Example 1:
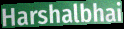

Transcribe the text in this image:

Harshalbhai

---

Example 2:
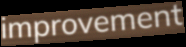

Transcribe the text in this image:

improvement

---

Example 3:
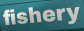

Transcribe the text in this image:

fishery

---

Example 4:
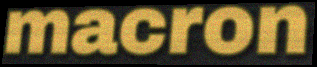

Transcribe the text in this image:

macron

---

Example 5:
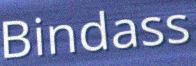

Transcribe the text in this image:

Bindass